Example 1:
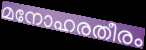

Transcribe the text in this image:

മനോഹരതീരം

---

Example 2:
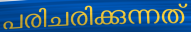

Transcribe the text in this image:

പരിചരിക്കുന്നത്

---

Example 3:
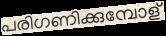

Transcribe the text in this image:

പരിഗണിക്കുമ്പോള്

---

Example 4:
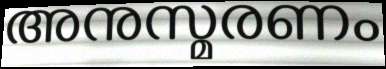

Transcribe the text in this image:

അനുസ്മരണം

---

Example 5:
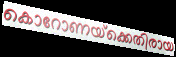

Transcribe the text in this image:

കൊറോണയ്‌ക്കെതിരായ